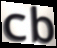
cb